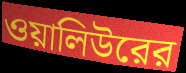
ওয়ালিউরের